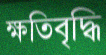
ক্ষতিবৃদ্ধি